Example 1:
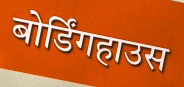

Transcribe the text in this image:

बोर्डिंगहाउस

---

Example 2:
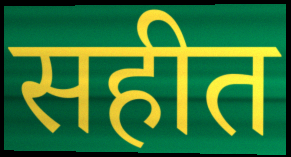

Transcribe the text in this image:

सहीत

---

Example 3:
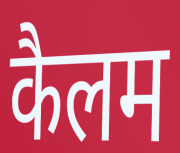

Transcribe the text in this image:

कैलम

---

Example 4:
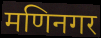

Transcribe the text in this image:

मणिनगर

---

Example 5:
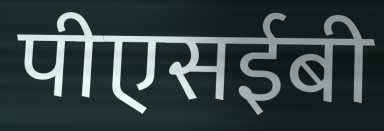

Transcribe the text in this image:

पीएसईबी